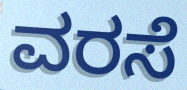
ವರಸೆ